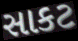
સાકટ